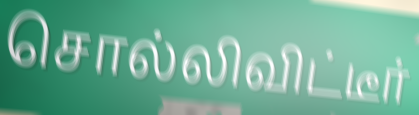
சொல்லிவிட்டீர்